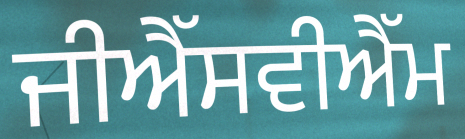
ਜੀਐੱਸਵੀਐੱਮ